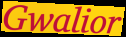
Gwalior